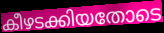
കീഴടക്കിയതോടെ